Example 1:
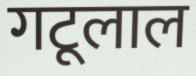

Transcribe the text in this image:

गटूलाल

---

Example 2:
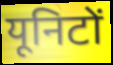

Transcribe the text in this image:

यूनिटों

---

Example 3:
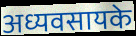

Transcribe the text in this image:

अध्यवसायके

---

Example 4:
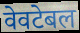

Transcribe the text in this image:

वेवटेबल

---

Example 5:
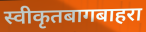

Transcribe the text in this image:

स्वीकृतबागबाहरा